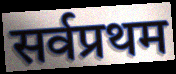
सर्वप्रथम